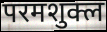
परमशुक्ल